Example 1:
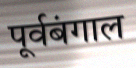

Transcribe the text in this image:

पूर्वबंगाल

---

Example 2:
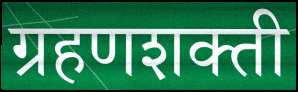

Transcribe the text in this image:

ग्रहणशक्ती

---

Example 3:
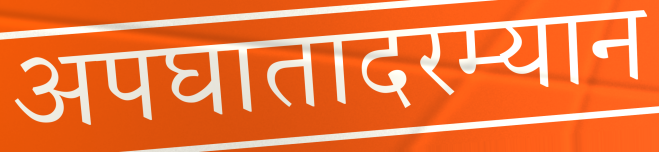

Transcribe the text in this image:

अपघातादरम्यान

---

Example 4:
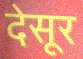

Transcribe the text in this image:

देसूर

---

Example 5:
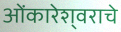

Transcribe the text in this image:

ओंकारेश्वराचे